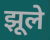
झूले